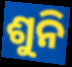
ଶୁନି